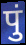
पुं